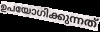
ഉപയോഗിക്കുന്നത്